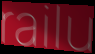
railu